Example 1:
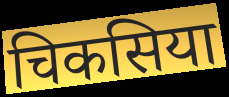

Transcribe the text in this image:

चिकसिया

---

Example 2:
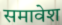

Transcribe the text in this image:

समावेश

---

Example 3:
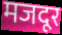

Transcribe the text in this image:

मजदूर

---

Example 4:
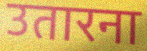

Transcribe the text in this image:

उतारना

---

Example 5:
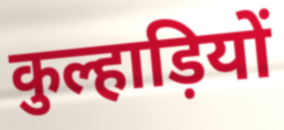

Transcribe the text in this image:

कुल्हाड़ियों